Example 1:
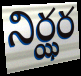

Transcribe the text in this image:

నిర్ఝర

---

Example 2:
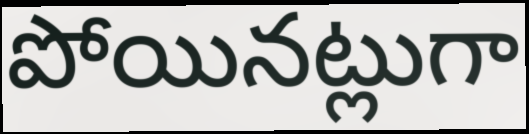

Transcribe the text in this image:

పోయినట్లుగా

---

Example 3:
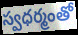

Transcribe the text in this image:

స్వధర్మంతో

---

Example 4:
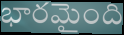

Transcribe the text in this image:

భారమైంది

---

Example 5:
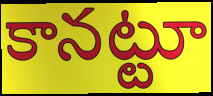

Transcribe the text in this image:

కానట్టూ